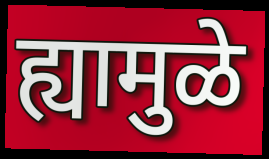
ह्यामुळे